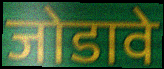
जोडावे